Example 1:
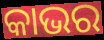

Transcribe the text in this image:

କାଭର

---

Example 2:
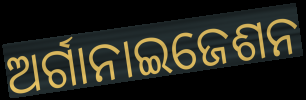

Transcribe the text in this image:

ଅର୍ଗାନାଇଜେଶନ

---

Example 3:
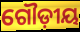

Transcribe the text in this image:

ଗୌଡ଼ୀୟ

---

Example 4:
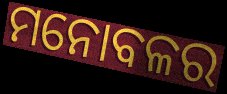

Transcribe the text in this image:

ମନୋବଳର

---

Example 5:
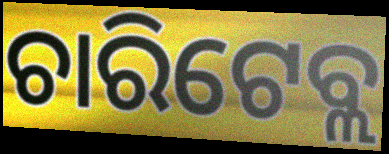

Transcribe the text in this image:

ଚାରିଟେବ୍ଲ